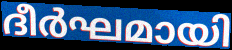
ദീർഘമായി